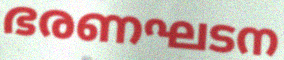
ഭരണഘടന